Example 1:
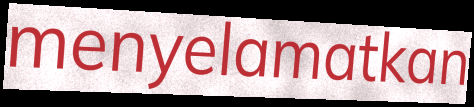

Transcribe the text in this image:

menyelamatkan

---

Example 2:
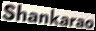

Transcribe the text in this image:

Shankarao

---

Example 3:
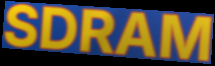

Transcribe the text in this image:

SDRAM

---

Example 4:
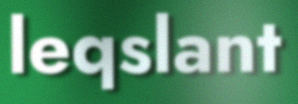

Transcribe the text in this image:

leqslant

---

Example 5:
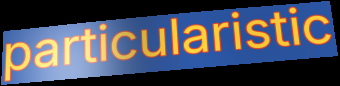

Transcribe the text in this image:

particularistic